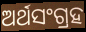
ଅର୍ଥସଂଗ୍ରହ